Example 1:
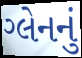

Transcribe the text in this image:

ગ્લેનનું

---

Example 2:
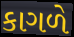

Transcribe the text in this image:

કાગળે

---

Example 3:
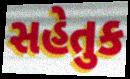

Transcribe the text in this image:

સહેતુક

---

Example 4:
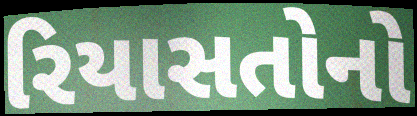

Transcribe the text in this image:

રિયાસતોનો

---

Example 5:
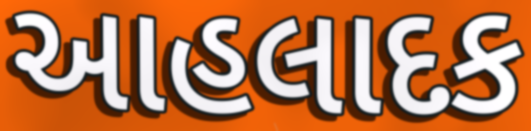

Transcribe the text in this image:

આહલાદક